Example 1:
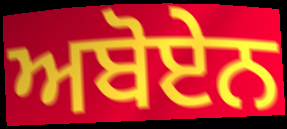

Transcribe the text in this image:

ਅਬੋਏਨ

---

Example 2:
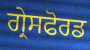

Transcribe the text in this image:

ਗ੍ਰੇਸਫੋਰਡ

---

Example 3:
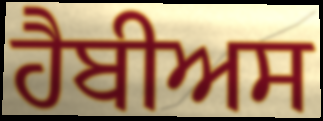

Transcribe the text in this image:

ਹੈਬੀਅਸ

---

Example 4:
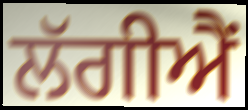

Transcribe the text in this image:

ਲੱਗੀਐਂ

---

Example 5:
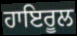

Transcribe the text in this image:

ਹਾਇਰੂਲ